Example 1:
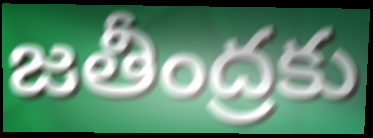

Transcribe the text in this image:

జతీంద్రకు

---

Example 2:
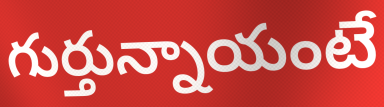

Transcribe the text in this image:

గుర్తున్నాయంటే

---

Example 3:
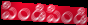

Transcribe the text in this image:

పిండిపిండి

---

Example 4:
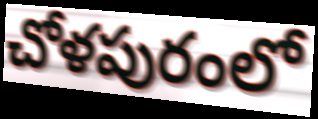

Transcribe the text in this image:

చోళపురంలో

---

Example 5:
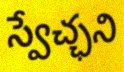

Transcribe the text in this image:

స్వేచ్ఛని